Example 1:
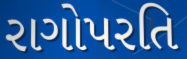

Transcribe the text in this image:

રાગોપરતિ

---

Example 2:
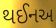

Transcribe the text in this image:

થઈનઅ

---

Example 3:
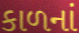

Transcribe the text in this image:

કાળનાં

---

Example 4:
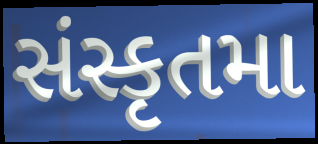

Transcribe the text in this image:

સંસ્કૃતમા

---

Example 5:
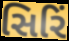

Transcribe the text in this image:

સિરિં